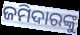
ଜମିଦାରଙ୍କୁ